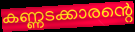
കണ്ണടക്കാരന്റെ